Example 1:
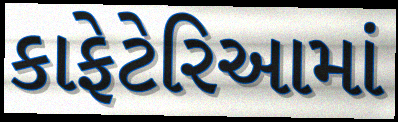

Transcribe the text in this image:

કાફેટેરિઆમાં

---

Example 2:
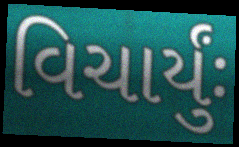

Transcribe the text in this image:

વિચાર્યુંઃ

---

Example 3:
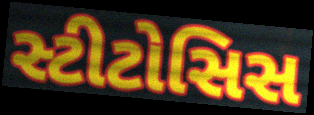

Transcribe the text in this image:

સ્ટીટોસિસ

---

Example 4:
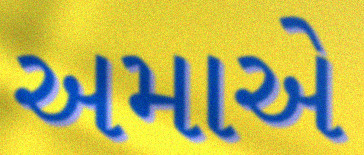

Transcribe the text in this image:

અમાએ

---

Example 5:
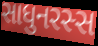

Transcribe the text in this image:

સાધુનરસ્સ